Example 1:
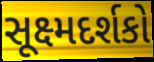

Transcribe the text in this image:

સૂક્ષ્મદર્શકો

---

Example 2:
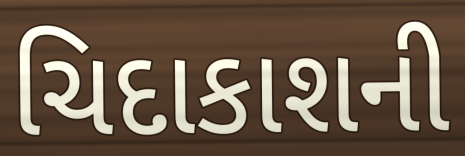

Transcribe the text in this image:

ચિદાકાશની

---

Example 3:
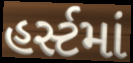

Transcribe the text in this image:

હર્સ્ટમાં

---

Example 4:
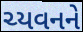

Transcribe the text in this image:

ચ્યવનને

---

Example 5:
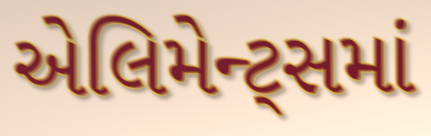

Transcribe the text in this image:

એલિમેન્ટ્સમાં